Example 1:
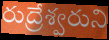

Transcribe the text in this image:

రుద్రేశ్వరుని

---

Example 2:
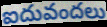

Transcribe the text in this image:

ఐదువందలు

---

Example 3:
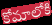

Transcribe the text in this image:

కోమాలోకి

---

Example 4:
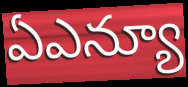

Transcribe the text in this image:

ఏఎన్యూ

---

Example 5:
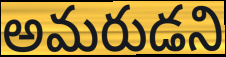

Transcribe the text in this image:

అమరుడని